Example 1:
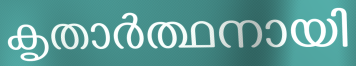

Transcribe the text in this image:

കൃതാർത്ഥനായി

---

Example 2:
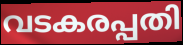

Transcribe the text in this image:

വടകരപ്പതി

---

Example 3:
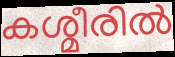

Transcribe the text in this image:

കശ്മീരിൽ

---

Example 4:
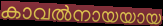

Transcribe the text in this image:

കാവൽനായയായ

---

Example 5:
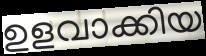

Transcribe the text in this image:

ഉളവാക്കിയ